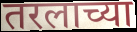
तरलाच्या